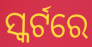
ସ୍କର୍ଟରେ